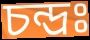
চন্দ্রঃ